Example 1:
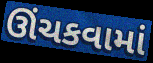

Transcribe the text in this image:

ઊંચકવામાં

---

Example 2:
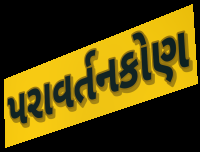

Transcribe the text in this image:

પરાવર્તનકોણ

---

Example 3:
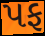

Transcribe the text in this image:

પફ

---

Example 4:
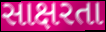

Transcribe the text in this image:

સાક્ષરતા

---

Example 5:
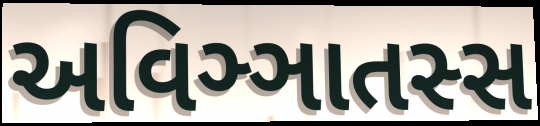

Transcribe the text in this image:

અવિઞ્ઞાતસ્સ